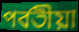
পৰ্বতীয়া